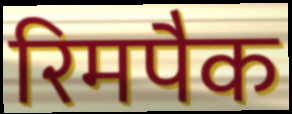
रिमपैक